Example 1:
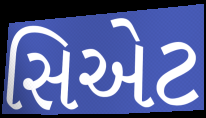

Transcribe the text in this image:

સિએટ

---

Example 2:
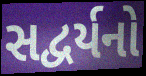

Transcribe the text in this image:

સદ્વર્યનો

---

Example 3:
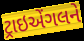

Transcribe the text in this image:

ટ્રાઇએંગલને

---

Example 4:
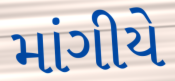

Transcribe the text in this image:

માંગીયે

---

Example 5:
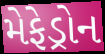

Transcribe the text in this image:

મેફેડ્રોન